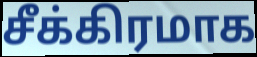
சீக்கிரமாக